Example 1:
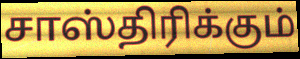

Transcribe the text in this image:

சாஸ்திரிக்கும்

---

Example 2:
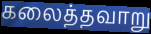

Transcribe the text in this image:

கலைத்தவாறு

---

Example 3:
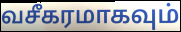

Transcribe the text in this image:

வசீகரமாகவும்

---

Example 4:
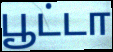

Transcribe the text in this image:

பூட்டா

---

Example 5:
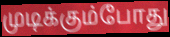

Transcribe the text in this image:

முடிக்கும்போது